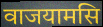
वाजयामसि